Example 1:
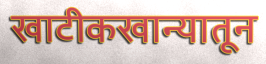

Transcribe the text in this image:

खाटीकखान्यातून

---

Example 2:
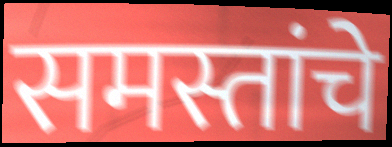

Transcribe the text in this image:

समस्तांचे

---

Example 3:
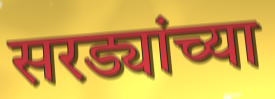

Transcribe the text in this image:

सरड्यांच्या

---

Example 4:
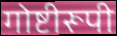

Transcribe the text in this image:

गोष्टीरूपी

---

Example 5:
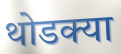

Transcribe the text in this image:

थोडक्या